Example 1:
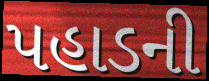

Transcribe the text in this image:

પહાડની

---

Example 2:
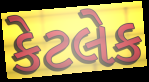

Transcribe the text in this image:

કેટલેક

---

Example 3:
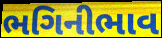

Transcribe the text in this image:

ભગિનીભાવ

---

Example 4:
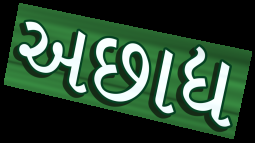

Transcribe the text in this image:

અછાદ્ય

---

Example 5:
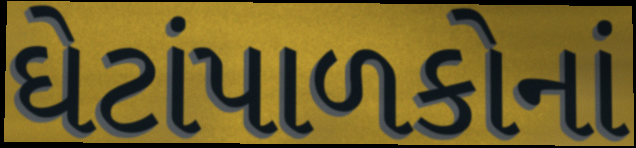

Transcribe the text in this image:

ઘેટાંપાળકોનાં